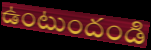
ఉంటుందండి